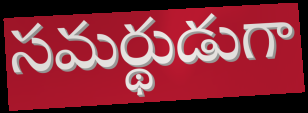
సమర్థుడుగా